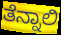
ತೆನ್ನಾಲಿ